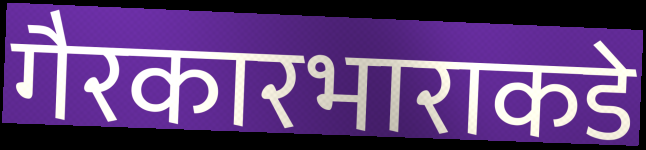
गैरकारभाराकडे